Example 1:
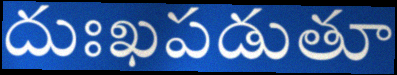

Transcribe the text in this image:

దుఃఖపడుతూ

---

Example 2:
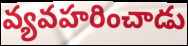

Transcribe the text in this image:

వ్యవహరించాడు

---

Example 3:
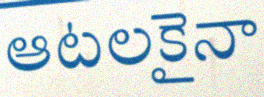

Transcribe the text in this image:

ఆటలకైనా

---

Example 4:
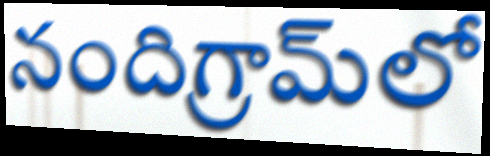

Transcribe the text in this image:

నందిగ్రామ్‌లో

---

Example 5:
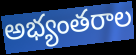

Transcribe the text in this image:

అభ్యంతరాల